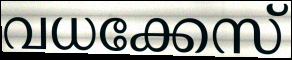
വധക്കേസ്